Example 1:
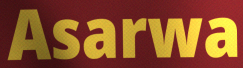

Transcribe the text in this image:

Asarwa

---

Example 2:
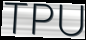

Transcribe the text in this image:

TPU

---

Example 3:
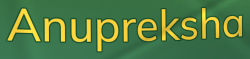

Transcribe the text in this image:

Anupreksha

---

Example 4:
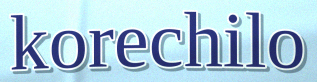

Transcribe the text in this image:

korechilo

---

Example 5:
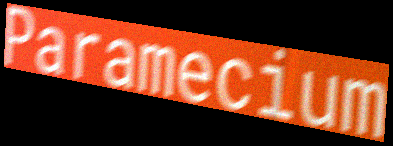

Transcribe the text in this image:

Paramecium